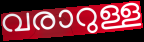
വരാറുള്ള